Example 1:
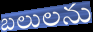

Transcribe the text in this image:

బలులను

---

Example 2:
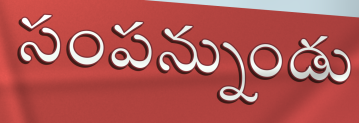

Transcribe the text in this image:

సంపన్నుండు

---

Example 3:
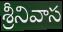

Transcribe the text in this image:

శ్రీనివాస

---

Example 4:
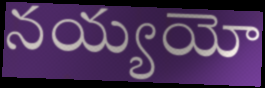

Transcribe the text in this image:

నయ్యయో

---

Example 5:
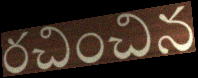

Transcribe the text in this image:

రచించిన